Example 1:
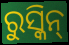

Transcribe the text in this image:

ରୁସ୍କିନ୍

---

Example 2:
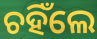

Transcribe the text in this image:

ଚହିଁଲେ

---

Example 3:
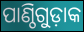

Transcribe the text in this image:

ପାଣ୍ଠିଗୁଡ଼ାକ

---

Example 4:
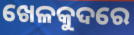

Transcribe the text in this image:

ଖେଳକୁଦରେ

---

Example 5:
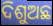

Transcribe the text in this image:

ଦିଶୁଅଛ